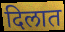
दिलात